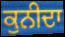
ਕੁਨੀਦਾ